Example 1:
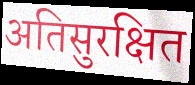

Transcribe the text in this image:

अतिसुरक्षित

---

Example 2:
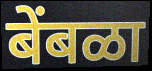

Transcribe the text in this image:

बेंबळा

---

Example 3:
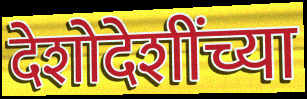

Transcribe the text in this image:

देशोदेशींच्या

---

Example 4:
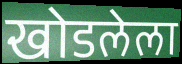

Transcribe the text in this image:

खोडलेला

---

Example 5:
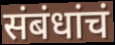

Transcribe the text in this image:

संबंधांचं